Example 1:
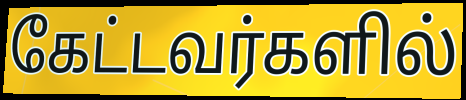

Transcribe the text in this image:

கேட்டவர்களில்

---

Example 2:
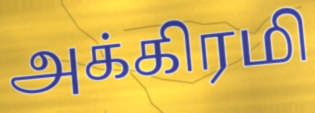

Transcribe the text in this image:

அக்கிரமி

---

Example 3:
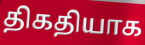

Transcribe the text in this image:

திகதியாக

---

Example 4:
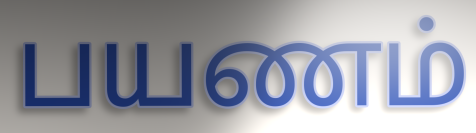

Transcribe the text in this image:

பயணம்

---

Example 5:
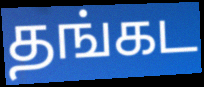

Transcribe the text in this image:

தங்கட